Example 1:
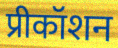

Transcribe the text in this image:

प्रीकॉशन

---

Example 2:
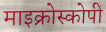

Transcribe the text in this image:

माइक्रोस्कोपी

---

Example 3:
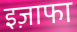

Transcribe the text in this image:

इज़ाफा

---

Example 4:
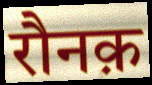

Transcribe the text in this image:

रौनक़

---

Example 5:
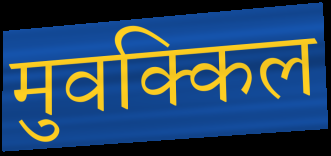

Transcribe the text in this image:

मुवक्किल